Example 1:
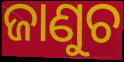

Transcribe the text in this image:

ଜାଣୁଚ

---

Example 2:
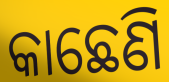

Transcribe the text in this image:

କାଛେଣି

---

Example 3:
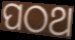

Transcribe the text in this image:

ପଠଥ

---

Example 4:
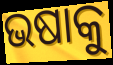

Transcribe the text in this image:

ଭଷାକୁ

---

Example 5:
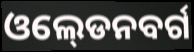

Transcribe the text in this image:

ଓଲ୍‍ଡେନବର୍ଗ